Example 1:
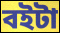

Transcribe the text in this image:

বইটা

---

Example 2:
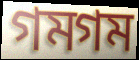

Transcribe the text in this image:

গমগম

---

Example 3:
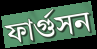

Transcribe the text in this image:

ফার্গুসন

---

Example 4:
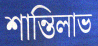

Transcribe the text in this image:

শান্তিলাভ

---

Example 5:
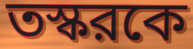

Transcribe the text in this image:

তস্করকে